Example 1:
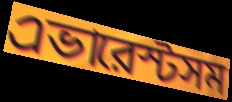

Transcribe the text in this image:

এভারেস্টসম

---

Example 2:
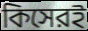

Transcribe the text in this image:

কিসেরই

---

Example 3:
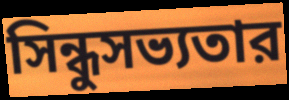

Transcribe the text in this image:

সিন্ধুসভ্যতার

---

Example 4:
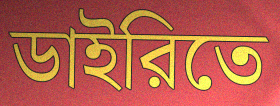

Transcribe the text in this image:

ডাইরিতে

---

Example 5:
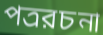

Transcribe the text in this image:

পত্ররচনা